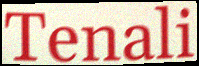
Tenali